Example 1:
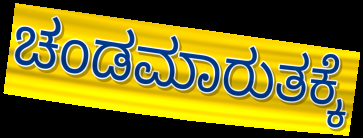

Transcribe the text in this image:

ಚಂಡಮಾರುತಕ್ಕೆ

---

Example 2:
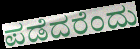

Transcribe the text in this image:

ಪಡೆದರೆಂದು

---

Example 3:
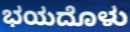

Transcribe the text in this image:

ಭಯದೊಳು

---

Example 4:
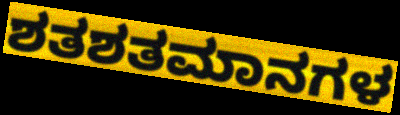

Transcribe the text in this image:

ಶತಶತಮಾನಗಳ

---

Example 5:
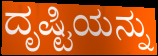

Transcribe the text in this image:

ದೃಷ್ಟಿಯನ್ನು